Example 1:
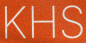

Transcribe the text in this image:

KHS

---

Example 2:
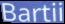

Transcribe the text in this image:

Bartii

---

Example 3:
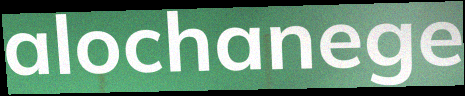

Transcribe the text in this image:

alochanege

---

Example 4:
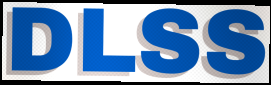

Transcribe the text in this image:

DLSS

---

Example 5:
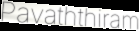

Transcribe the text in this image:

Pavaththiram